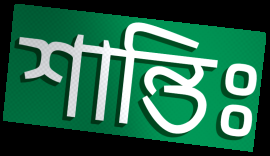
শান্তিঃ